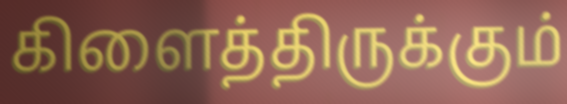
கிளைத்திருக்கும்